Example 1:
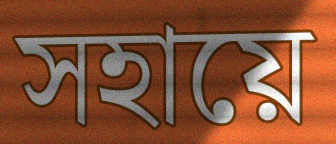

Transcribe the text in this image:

সহায়ে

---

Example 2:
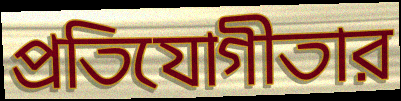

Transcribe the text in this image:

প্রতিযোগীতার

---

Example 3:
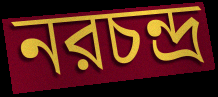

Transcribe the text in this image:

নরচন্দ্র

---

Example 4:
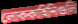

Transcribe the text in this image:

লোককাহিনিগুলি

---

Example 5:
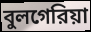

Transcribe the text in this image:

বুলগেরিয়া